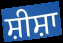
ਸ਼ੀਸ਼ਾ